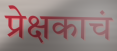
प्रेक्षकाचं